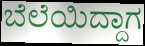
ಬೆಲೆಯಿದ್ದಾಗ